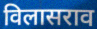
विलासराव